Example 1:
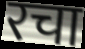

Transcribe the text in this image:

रचा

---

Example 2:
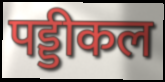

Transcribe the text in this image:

पड्डीकल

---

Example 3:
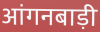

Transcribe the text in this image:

आंगनबाड़ी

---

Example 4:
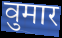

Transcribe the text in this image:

वुमार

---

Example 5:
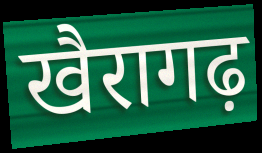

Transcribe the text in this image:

खैरागढ़